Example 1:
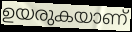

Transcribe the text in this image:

ഉയരുകയാണ്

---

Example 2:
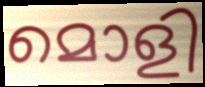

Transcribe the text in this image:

മൊളി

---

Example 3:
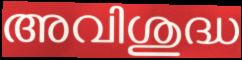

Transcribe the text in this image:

അവിശുദ്ധ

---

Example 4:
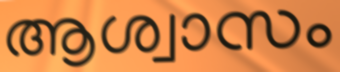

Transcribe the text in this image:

ആശ്വാസം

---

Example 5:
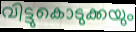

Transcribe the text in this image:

വിട്ടുകൊടുക്കയും